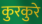
कुरकुरे